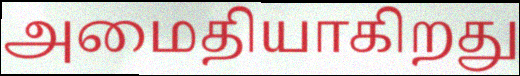
அமைதியாகிறது